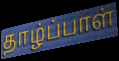
தாழ்ப்பாள்